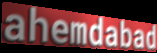
ahemdabad